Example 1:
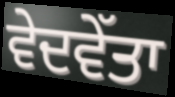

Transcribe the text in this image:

ਵੇਦਵੇੱਤਾ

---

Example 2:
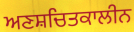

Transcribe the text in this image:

ਅਣਸ਼ਚਿਤਕਾਲੀਨ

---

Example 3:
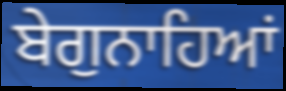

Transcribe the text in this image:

ਬੇਗੁਨਾਹਿਆਂ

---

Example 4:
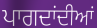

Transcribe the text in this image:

ਪਾਗਦਾਂਦੀਆਂ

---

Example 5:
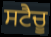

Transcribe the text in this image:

ਸਟੈਚੂ